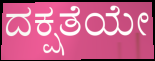
ದಕ್ಷತೆಯೇ